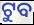
ଟୁବ